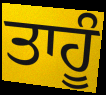
ਤਾਹੂੰ